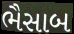
ભૈસાબ